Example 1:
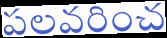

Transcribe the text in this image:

పలవరించ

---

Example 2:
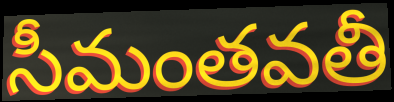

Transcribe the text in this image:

సీమంతవతీ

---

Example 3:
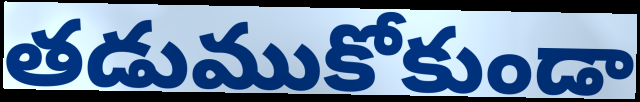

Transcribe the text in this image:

తడుముకోకుండా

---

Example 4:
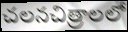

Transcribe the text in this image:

చలనచిత్రాలలో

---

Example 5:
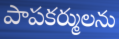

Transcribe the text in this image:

పాపకర్ములను